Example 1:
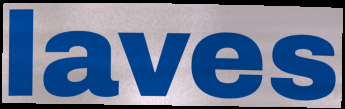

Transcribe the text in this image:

laves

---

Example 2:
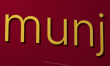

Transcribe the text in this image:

munj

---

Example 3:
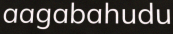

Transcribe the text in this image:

aagabahudu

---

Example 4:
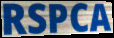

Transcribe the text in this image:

RSPCA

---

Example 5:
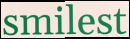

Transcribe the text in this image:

smilest